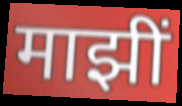
माझीं